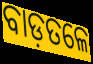
ବାଡ଼ତଳେ